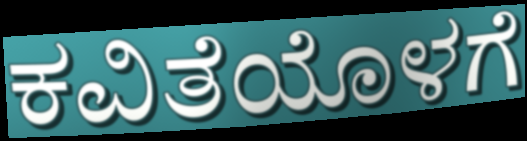
ಕವಿತೆಯೊಳಗೆ